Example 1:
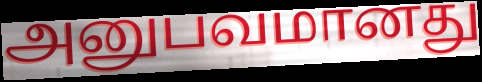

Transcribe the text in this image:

அனுபவமானது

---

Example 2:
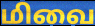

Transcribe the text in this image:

மிவை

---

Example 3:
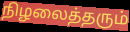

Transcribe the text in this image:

நிழலைத்தரும்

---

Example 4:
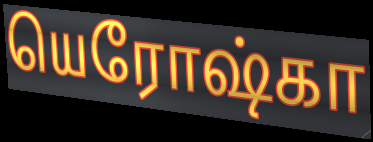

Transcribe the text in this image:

யெரோஷ்கா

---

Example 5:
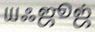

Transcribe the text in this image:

யஃஜூஜ்